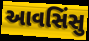
આવસિંસુ